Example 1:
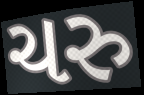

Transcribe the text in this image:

ચરુ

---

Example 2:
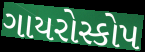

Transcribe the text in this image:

ગાયરોસ્કોપ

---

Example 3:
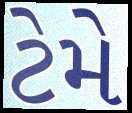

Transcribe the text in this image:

ટેમે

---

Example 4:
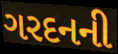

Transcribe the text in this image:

ગરદનની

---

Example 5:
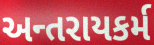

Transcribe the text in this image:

અન્તરાયકર્મ